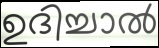
ഉദിച്ചാൽ